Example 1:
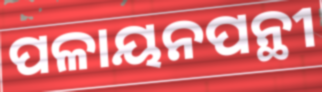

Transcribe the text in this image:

ପଳାୟନପନ୍ଥୀ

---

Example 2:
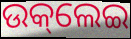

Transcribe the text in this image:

ଉକ୍‌ଲେଇ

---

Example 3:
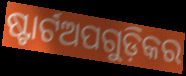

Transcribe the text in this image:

ଷ୍ଟାର୍ଟଅପଗୁଡ଼ିକର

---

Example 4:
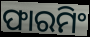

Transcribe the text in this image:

ଫାରମିଂ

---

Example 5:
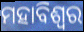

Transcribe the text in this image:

ମହାବିଶ୍ଵର